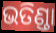
ଭତିଣ୍ଡା